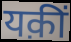
यक़ीं